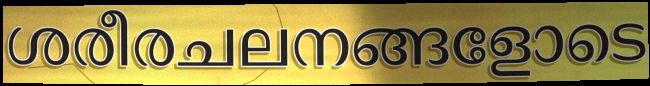
ശരീരചലനങ്ങളോടെ